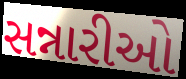
સન્નારીઓ